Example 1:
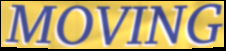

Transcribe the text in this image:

MOVING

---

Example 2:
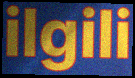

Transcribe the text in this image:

ilgili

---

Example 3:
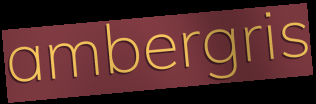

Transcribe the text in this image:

ambergris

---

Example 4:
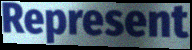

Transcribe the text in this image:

Represent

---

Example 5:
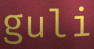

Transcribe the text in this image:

guli